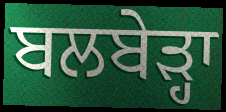
ਬਲਬੇੜ੍ਹਾ